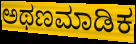
ಅಥಣಮಾಡಿಕ